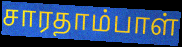
சாரதாம்பாள்